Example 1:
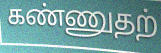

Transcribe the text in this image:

கண்ணுதற்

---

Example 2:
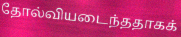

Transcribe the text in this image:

தோல்வியடைந்ததாகக்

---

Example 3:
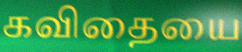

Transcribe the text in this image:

கவிதையை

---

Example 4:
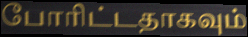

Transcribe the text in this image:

போரிட்டதாகவும்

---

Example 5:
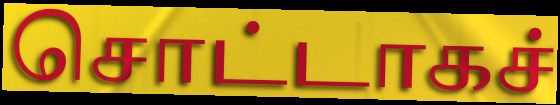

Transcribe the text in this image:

சொட்டாகச்